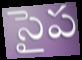
సైప